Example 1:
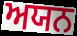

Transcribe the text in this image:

ਅਯਨ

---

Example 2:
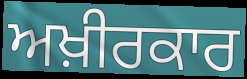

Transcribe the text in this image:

ਅਖ਼ੀਰਕਾਰ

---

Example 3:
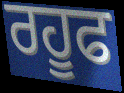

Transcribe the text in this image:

ਰਹੂਫ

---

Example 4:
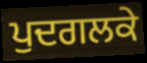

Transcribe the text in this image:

ਪੁਦਗਲਕੇ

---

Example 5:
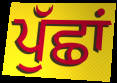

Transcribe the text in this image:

ਪੁੱਛਾਂ